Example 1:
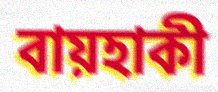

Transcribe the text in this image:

বায়হাকী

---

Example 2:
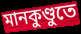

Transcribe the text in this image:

মানকুণ্ডুতে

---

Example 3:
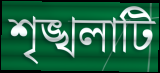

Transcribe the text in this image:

শৃঙ্খলাটি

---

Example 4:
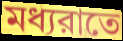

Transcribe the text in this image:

মধ্যরাতে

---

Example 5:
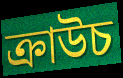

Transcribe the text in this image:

ক্রাউচ